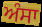
ਅੰਸਾ